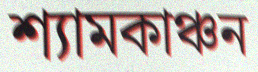
শ্যামকাঞ্চন